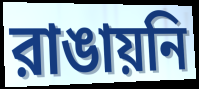
রাঙায়নি